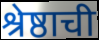
श्रेष्ठाची